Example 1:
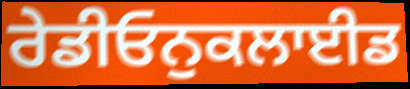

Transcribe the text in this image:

ਰੇਡੀਓਨੁਕਲਾਈਡ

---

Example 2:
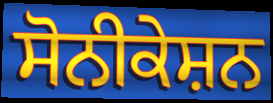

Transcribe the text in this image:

ਸੋਨੀਕੇਸ਼ਨ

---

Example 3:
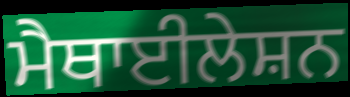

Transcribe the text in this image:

ਮੈਥਾਈਲੇਸ਼ਨ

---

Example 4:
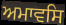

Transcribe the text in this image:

ਅਮਾਵਸਿ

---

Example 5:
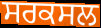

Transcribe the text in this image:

ਸਰਕਸਲ